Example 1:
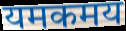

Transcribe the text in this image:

यमकमय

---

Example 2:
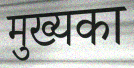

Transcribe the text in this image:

मुख्यका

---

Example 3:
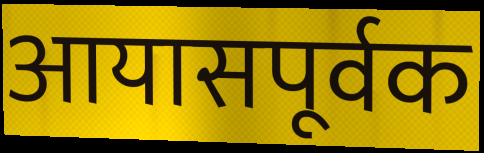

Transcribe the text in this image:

आयासपूर्वक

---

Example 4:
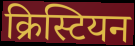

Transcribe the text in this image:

क्रिस्टियन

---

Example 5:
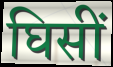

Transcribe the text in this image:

घिसीं